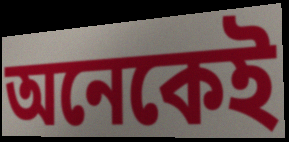
অনেকেই